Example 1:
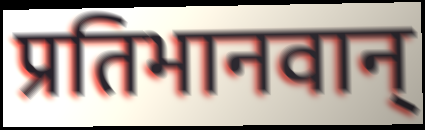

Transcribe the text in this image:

प्रतिभानवान्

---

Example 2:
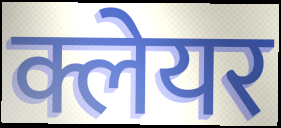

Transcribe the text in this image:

क्लेयर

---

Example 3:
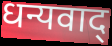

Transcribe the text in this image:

धन्यवाद्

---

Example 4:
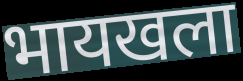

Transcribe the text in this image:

भायखला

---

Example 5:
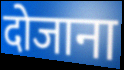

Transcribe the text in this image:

दोजाना